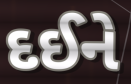
દઈને